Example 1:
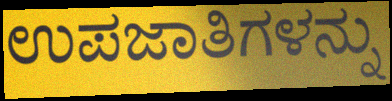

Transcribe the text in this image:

ಉಪಜಾತಿಗಳನ್ನು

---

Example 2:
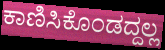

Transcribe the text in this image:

ಕಾಣಿಸಿಕೊಂಡದ್ದಲ್ಲ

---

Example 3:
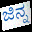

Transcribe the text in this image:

ಜಿನ್ನ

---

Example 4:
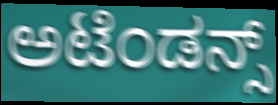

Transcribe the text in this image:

ಅಟೆಂಡನ್ಸ್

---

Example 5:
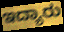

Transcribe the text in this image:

ಇದ್ಯಾರು